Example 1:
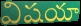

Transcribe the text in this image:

విషయా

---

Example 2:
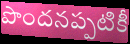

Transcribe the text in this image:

పొందనప్పటికీ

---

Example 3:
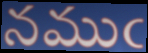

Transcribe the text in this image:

నముఁ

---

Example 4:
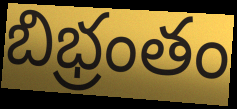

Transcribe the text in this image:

బిభ్రంతం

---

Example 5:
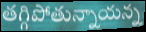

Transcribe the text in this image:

తగ్గిపోతున్నాయన్న